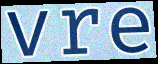
vre